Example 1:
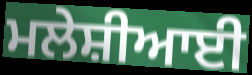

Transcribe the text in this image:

ਮਲੇਸ਼ੀਆਈ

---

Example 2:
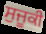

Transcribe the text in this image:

ਸੁਜੂਕੀ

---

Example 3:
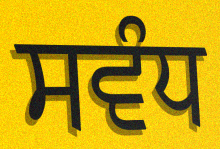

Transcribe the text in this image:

ਸਵੰਧ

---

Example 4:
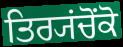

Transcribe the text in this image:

ਤਿਰ੍ਯਂਚੋਂਕੋ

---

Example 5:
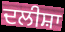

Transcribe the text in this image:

ਦਲੀਸ਼ਾ